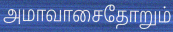
அமாவாசைதோறும்